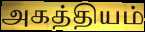
அகத்தியம்